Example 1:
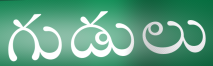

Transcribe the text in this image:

గుడులు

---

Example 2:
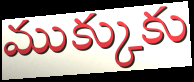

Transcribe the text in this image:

ముక్కుకు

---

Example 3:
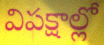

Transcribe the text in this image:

విపక్షాల్లో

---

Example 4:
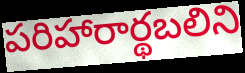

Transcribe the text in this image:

పరిహారార్థబలిని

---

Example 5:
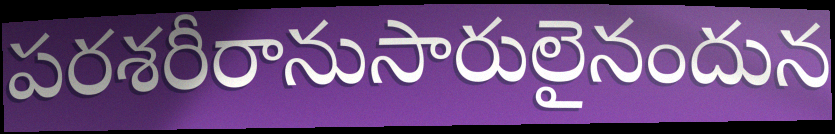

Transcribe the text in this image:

పరశరీరానుసారులైనందున